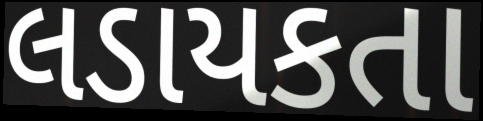
લડાયકતા